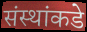
संस्थांकडे